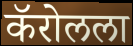
कॅरोलला